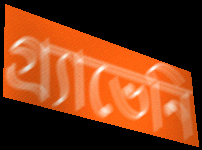
গ্র্যাভেনি